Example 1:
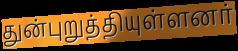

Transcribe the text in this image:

துன்புறுத்தியுள்ளனர்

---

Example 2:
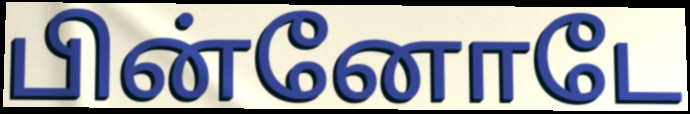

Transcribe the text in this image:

பின்னோடே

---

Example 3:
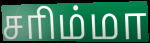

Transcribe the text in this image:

சரிம்மா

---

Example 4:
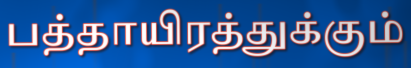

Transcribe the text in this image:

பத்தாயிரத்துக்கும்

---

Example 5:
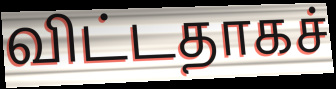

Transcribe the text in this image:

விட்டதாகச்